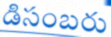
డిసంబరు